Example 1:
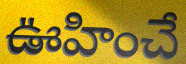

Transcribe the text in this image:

ఊహించే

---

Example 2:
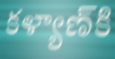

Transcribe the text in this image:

కళ్యాణ్‍కి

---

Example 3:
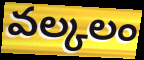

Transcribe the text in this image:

వల్కలం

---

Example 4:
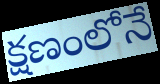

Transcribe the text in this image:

క్షణంలోనే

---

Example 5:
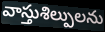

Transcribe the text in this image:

వాస్తుశిల్పులను